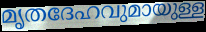
മൃതദേഹവുമായുള്ള